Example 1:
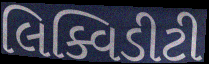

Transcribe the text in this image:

લિક્વિડીટી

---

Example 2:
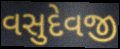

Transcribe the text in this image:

વસુદેવજી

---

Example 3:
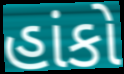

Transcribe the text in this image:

હાંકો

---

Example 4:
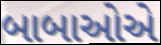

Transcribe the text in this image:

બાબાઓએ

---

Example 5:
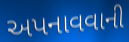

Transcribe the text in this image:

અપનાવવાની